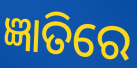
ଜ୍ଞାତିରେ